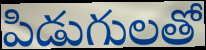
పిడుగులతో